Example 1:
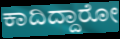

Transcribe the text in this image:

ಕಾದಿದ್ದಾರೋ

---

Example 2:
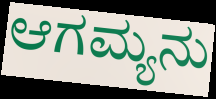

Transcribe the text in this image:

ಆಗಮ್ಯನು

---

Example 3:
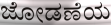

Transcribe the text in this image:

ಜೋಡಣೆಯ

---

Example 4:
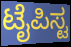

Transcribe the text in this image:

ಟೈಪಿಸ್ಟ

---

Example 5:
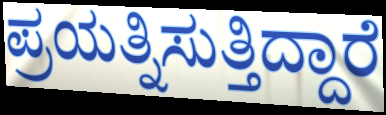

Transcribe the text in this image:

ಪ್ರಯತ್ನಿಸುತ್ತಿದ್ದಾರೆ